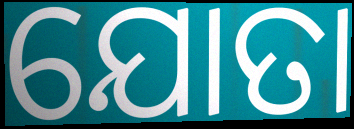
ଯୋତା